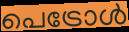
പെട്രോൾ